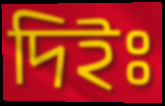
দিইঃ